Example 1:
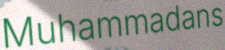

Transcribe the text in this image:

Muhammadans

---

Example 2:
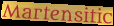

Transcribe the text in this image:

Martensitic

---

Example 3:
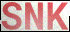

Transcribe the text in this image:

SNK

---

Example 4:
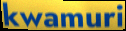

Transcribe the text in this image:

kwamuri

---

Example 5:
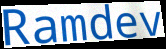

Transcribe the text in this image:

Ramdev